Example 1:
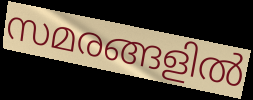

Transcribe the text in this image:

സമരങ്ങളിൽ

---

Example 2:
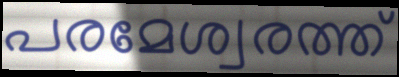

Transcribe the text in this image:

പരമേശ്വരത്ത്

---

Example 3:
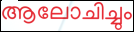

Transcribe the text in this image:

ആലോചിച്ചും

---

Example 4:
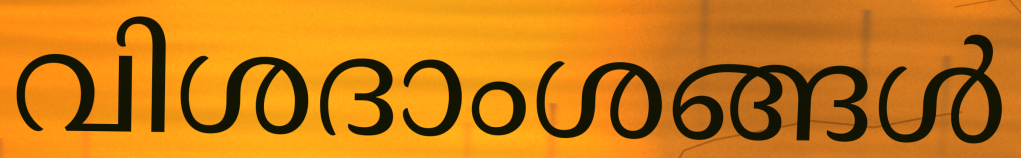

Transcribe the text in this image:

വിശദാംശങ്ങൾ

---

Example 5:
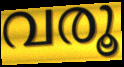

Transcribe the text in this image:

വരൂ